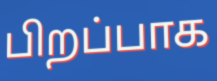
பிறப்பாக